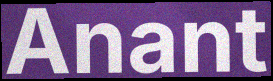
Anant